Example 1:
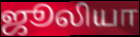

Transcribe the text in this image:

ஜூலியா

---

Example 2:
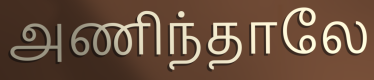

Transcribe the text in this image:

அணிந்தாலே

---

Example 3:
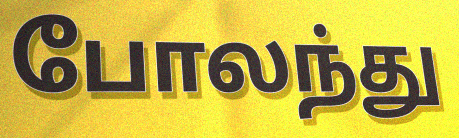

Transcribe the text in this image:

போலந்து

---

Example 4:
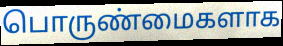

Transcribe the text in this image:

பொருண்மைகளாக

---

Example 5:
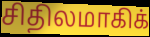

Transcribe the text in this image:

சிதிலமாகிக்